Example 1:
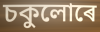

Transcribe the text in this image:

চকুলোৰে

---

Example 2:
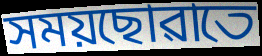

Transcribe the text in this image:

সময়ছোৱাতে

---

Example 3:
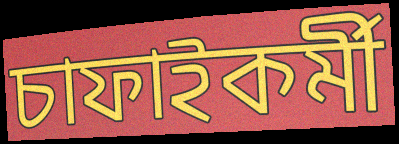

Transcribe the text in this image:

চাফাইকৰ্মী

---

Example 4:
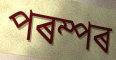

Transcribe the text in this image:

পৰম্পৰ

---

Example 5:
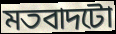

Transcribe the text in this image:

মতবাদটো